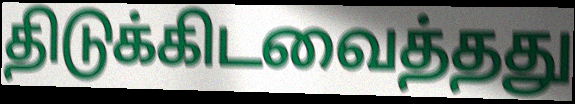
திடுக்கிடவைத்தது